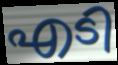
എടി